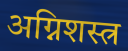
अग्निशस्त्र